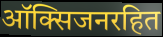
ऑक्सिजनरहित